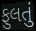
ફુલતું